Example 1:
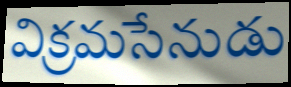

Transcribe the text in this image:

విక్రమసేనుడు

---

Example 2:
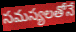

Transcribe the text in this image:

సమస్యలతోనే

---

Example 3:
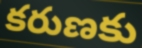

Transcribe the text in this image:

కరుణకు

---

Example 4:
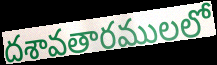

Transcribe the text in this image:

దశావతారములలో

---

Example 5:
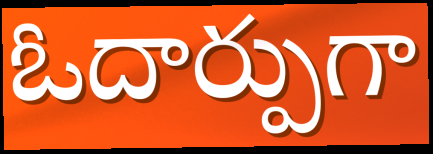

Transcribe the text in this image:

ఓదార్పుగా